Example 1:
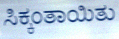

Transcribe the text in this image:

ಸಿಕ್ಕಂತಾಯಿತು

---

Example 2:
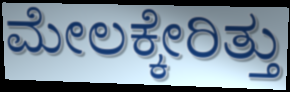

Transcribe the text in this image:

ಮೇಲಕ್ಕೇರಿತ್ತು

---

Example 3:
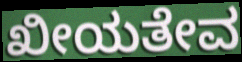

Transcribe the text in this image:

ಖೀಯತೇವ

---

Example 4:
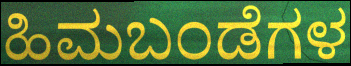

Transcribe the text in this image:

ಹಿಮಬಂಡೆಗಳ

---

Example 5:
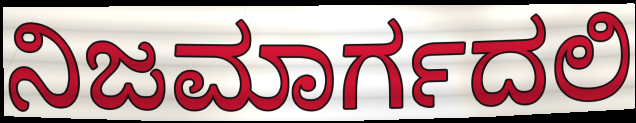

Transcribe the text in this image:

ನಿಜಮಾರ್ಗದಲಿ